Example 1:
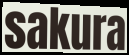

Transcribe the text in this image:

sakura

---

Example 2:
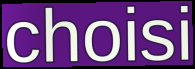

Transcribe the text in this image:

choisi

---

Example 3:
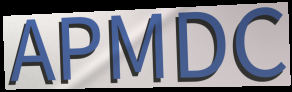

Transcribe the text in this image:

APMDC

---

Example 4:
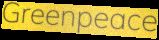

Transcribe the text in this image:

Greenpeace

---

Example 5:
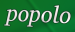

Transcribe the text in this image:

popolo